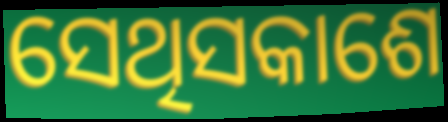
ସେଥିସକାଶେ